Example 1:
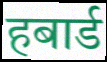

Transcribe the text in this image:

हबार्ड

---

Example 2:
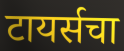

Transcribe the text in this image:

टायर्सचा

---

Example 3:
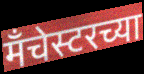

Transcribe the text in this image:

मँचेस्टरच्या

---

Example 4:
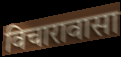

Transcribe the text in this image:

विचारावासा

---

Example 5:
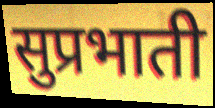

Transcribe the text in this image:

सुप्रभाती